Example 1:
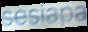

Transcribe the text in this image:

sesiapa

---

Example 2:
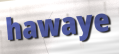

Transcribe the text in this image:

hawaye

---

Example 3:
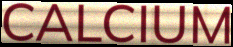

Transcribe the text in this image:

CALCIUM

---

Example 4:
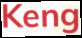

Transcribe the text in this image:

Keng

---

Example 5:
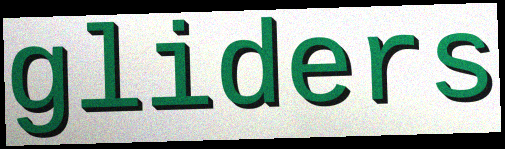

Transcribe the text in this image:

gliders